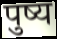
पुष्य